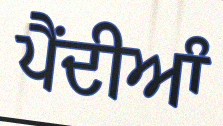
ਪੈੰਦੀਆੰ